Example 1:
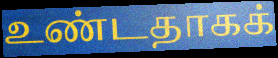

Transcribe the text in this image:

உண்டதாகக்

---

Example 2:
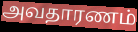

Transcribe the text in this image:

அவதாரணம்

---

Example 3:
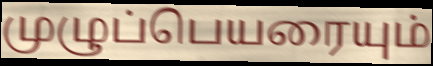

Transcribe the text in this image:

முழுப்பெயரையும்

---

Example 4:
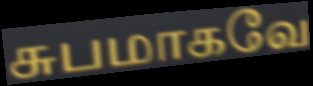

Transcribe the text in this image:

சுபமாகவே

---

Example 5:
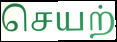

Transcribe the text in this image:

செயற்